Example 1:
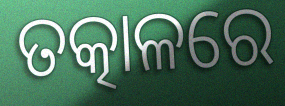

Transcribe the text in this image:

ତତ୍କାଳରେ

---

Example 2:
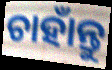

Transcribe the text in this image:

ଚାହାଁନ୍ତୁ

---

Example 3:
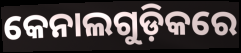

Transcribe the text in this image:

କେନାଲଗୁଡ଼ିକରେ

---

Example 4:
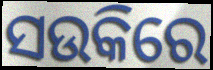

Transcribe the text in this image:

ସଉକିରେ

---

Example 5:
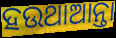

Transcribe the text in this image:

ହଉଥାଆନ୍ତା